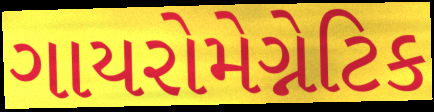
ગાયરોમેગ્નેટિક